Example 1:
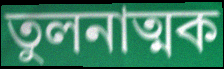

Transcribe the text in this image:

তুলনাত্মক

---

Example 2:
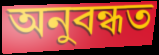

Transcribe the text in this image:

অনুবন্ধত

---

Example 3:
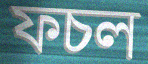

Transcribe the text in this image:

ফচল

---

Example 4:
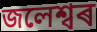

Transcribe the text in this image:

জলেশ্বৰ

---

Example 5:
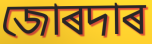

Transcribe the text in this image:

জোৰদাৰ